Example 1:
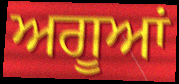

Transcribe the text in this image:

ਅਗੂਆਂ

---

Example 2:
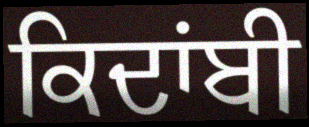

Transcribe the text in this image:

ਕਿਦਾਂਬੀ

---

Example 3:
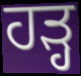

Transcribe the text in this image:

ਹੜ੍ਹ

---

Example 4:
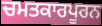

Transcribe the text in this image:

ਚਮਤਕਾਰਪੂਰਨ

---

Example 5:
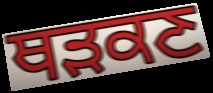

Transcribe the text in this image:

ਥੜਕਣ